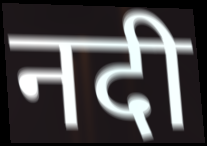
नदी